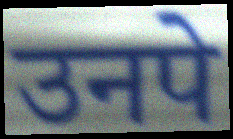
उनपे